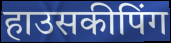
हाउसकीपिंग